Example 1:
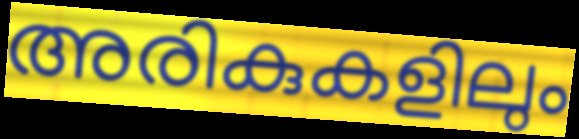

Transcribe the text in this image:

അരികുകളിലും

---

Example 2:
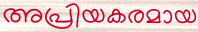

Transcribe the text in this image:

അപ്രിയകരമായ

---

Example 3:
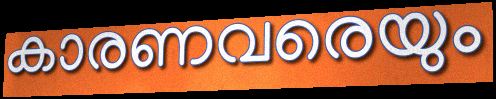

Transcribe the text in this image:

കാരണവരെയും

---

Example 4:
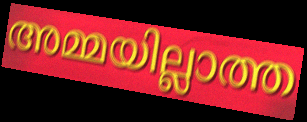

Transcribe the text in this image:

അമ്മയില്ലാത്ത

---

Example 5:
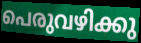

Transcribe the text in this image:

പെരുവഴിക്കു